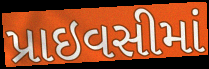
પ્રાઇવસીમાં